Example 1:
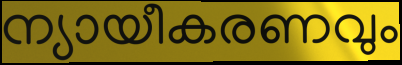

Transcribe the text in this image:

ന്യായീകരണവും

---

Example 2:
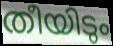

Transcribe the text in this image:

തീയിടും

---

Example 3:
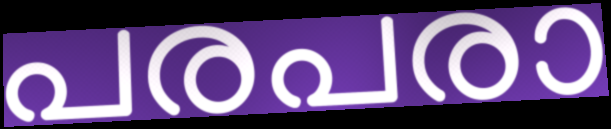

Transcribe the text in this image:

പരപരാ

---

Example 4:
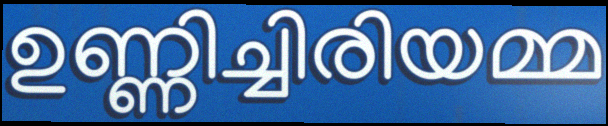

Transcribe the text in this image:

ഉണ്ണിച്ചിരിയമ്മ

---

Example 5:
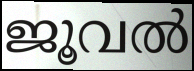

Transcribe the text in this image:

ജൂവൽ